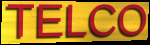
TELCO